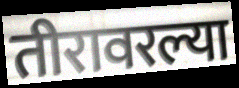
तीरावरल्या